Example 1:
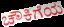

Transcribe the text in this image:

ಚೌಕಿಗೆಯ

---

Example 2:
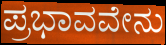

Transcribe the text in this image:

ಪ್ರಭಾವವೇನು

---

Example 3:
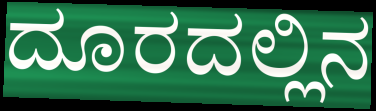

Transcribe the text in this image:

ದೂರದಲ್ಲಿನ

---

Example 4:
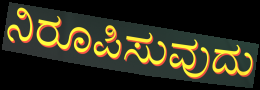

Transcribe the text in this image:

ನಿರೂಪಿಸುವುದು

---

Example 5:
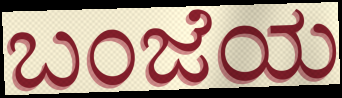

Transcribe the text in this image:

ಬಂಜೆಯ